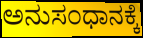
ಅನುಸಂಧಾನಕ್ಕೆ